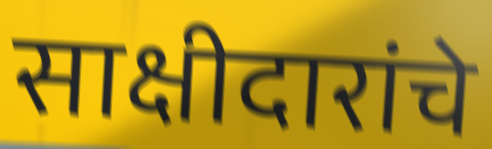
साक्षीदारांचे